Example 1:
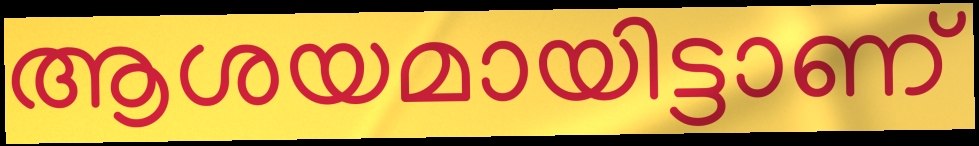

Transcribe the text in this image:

ആശയമായിട്ടാണ്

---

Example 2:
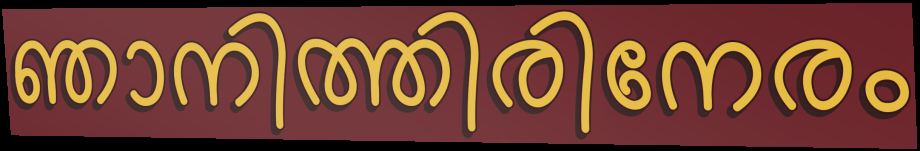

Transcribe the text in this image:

ഞാനിത്തിരിനേരം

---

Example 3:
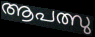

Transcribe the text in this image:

ആപത്സു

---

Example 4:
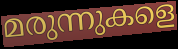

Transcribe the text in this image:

മരുന്നുകളെ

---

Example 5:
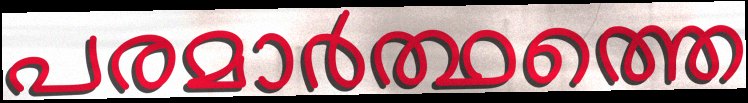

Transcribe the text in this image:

പരമാർത്ഥത്തെ